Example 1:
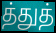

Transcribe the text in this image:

த்துத்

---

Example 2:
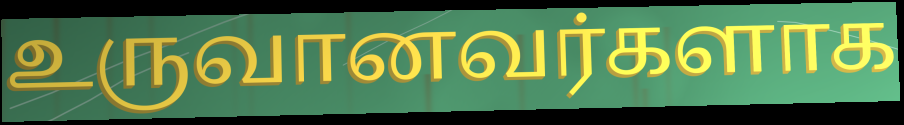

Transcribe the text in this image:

உருவானவர்களாக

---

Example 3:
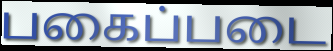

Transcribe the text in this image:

பகைப்படை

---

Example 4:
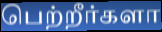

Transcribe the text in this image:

பெற்றீர்களா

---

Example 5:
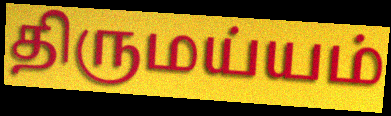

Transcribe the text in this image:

திருமய்யம்